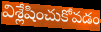
విశ్లేషించుకోవడం